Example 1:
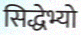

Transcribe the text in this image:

सिद्धेभ्यो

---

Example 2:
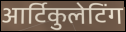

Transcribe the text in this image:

आर्टिकुलेटिंग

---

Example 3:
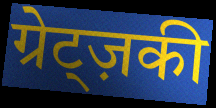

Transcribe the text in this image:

ग्रेट्ज़की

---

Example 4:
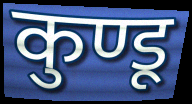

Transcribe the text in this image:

कुण्डू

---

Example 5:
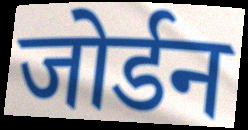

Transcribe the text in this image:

जोर्डन